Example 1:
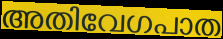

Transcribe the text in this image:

അതിവേഗപാത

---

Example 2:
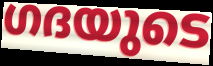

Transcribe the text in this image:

ഗദയുടെ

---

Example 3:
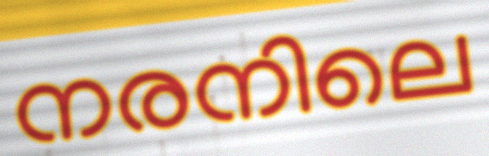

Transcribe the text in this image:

നരനിലെ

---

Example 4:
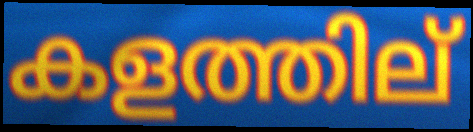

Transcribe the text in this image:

കളത്തില്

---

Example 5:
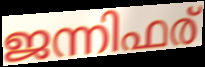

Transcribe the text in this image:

ജന്നിഫര്